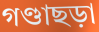
গণ্ডাছড়া